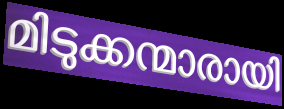
മിടുക്കന്മാരായി